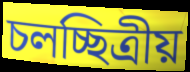
চলচ্ছিত্ৰীয়